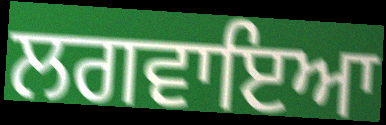
ਲਗਵਾਇਆ